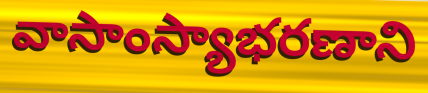
వాసాంస్యాభరణాని